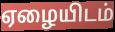
ஏழையிடம்